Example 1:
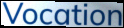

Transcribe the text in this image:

Vocation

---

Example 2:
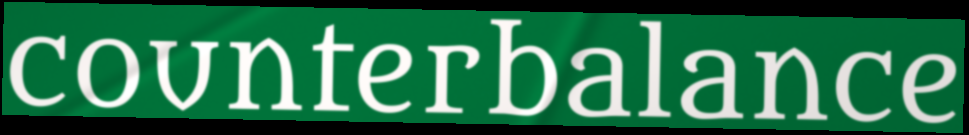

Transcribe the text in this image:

counterbalance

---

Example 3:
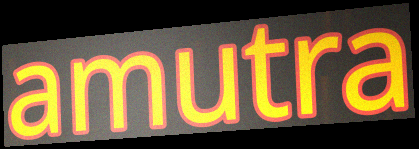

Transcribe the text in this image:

amutra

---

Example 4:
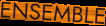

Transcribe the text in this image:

ENSEMBLE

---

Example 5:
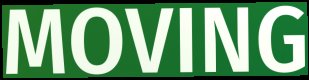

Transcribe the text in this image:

MOVING